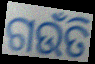
ଗଉଁତି